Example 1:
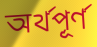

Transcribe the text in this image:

অর্থপূর্ণ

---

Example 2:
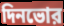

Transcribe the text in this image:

দিনভোর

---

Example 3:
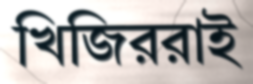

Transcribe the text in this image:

খিজিররাই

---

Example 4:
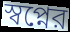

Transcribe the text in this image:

স্বপ্নের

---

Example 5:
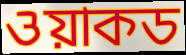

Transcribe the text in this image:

ওয়াকড